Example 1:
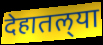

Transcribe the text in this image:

देहातल्या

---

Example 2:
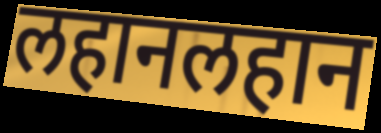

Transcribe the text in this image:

लहानलहान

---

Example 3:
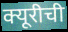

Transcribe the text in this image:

क्यूरीची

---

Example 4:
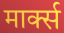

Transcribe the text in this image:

मार्क्‍स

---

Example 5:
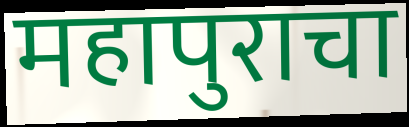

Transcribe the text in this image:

महापुराचा